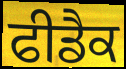
ਫੀਡੈਕ